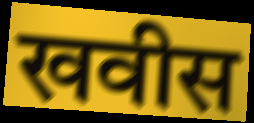
खवीस